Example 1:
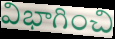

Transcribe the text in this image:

విభాగించి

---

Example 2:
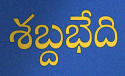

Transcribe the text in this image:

శబ్దభేది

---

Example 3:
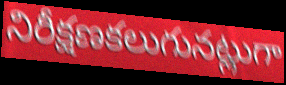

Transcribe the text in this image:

నిరీక్షణకలుగునట్లుగా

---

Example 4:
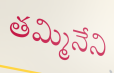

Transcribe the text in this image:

తమ్మినేని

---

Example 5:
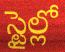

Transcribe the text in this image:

స్టైల్లో